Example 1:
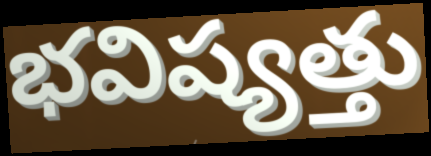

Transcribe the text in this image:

భవిష్యత్తు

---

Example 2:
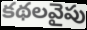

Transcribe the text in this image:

కథలవైపు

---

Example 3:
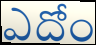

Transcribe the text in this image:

ఎదోం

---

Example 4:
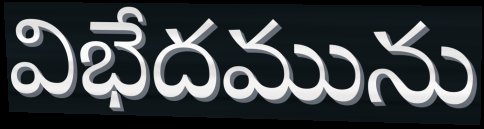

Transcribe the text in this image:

విభేదమును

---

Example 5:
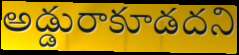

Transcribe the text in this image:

అడ్డురాకూడదని